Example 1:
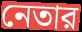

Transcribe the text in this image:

নেতার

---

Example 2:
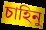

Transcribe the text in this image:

চাহিনু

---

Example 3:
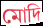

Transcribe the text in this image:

মোদি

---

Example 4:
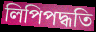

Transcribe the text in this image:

লিপিপদ্ধতি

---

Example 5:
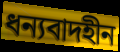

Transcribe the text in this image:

ধন্যবাদহীন